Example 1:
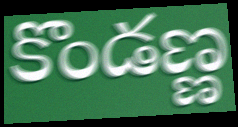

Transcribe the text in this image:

కొండణ్ణ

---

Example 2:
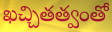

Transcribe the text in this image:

ఖచ్చితత్వంతో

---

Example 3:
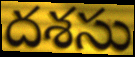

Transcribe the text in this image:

దశసు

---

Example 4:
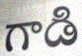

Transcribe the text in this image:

గాడి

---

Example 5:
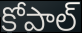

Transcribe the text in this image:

కోపాల్